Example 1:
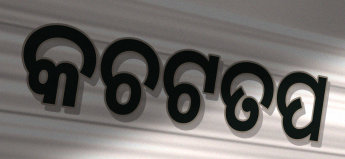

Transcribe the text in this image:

କଚଟତପ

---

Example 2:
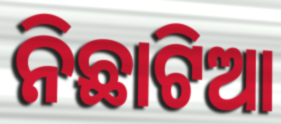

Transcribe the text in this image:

ନିଛାଟିଆ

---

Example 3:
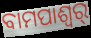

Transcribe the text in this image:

ବାମପାଶ୍ୱର୍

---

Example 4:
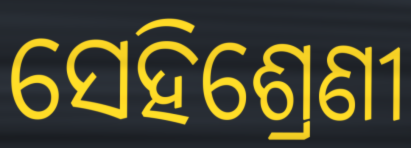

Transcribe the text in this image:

ସେହିଶ୍ରେଣୀ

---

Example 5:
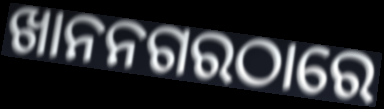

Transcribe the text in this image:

ଖାନନଗରଠାରେ